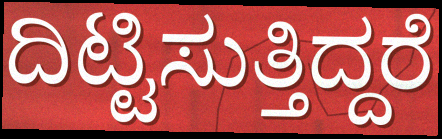
ದಿಟ್ಟಿಸುತ್ತಿದ್ದರೆ